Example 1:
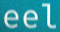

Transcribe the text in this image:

eel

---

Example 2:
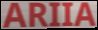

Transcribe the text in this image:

ARIIA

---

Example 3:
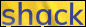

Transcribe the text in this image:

shack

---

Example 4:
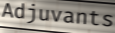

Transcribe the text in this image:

Adjuvants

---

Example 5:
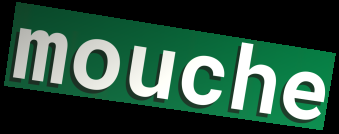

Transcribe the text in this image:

mouche